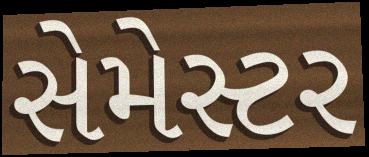
સેમેસ્ટર